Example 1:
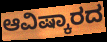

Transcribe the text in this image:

ಆವಿಷ್ಕಾರದ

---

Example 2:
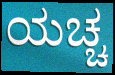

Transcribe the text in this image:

ಯಚ್ಚ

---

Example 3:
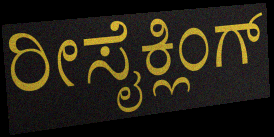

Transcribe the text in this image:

ರೀಸೈಕ್ಲಿಂಗ್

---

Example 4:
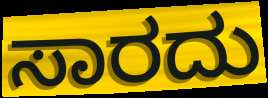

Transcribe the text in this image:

ಸಾರದು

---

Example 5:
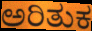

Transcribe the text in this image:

ಅರಿತುಕ